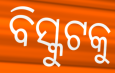
ବିସ୍କୁଟକୁ